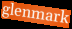
glenmark